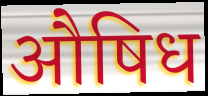
औषिध